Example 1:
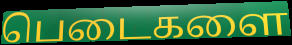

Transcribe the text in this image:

பெடைகளை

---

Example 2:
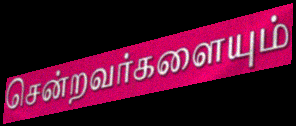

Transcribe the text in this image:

சென்றவர்களையும்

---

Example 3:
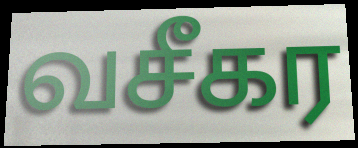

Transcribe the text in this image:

வசீகர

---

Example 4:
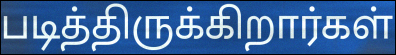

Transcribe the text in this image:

படித்திருக்கிறார்கள்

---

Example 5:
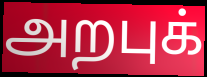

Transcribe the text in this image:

அறபுக்